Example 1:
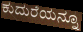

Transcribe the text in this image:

ಕುದುರೆಯನ್ನೂ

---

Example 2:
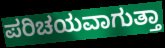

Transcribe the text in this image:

ಪರಿಚಯವಾಗುತ್ತಾ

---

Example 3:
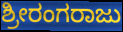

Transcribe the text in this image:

ಶ್ರೀರಂಗರಾಜು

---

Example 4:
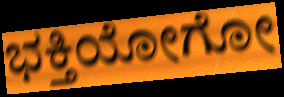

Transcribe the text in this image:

ಭಕ್ತಿಯೋಗೋ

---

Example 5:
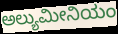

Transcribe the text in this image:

ಅಲ್ಯುಮೀನಿಯಂ